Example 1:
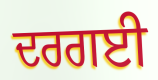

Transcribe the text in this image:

ਦਰਗਈ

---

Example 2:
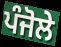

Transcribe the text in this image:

ਪੰਜੋਲੇ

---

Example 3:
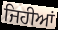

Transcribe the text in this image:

ਜਿਹੀਆਂ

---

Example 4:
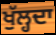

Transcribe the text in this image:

ਖੁੱਲ੍ਹਦਾ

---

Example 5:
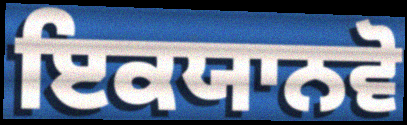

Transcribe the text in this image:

ਇਕਯਾਨਵੋ